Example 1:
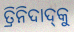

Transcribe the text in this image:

ତ୍ରିନିଦାଦ୍‍କୁ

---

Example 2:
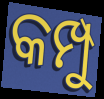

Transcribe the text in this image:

କମ୍ପୁ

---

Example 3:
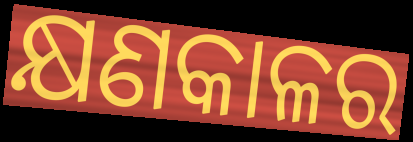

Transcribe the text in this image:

କ୍ଷଣକାଳର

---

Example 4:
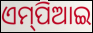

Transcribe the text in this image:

ଏମ୍‌ପିଆଇ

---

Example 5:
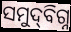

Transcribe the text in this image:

ସମୁଦ୍‌ବିଗ୍ନ